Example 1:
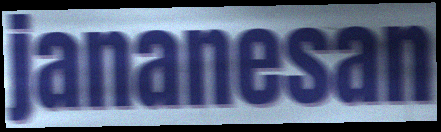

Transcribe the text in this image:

jananesan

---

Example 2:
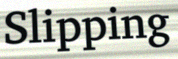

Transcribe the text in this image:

Slipping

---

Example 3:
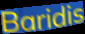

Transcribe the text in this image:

Baridis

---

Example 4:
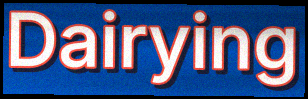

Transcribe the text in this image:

Dairying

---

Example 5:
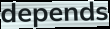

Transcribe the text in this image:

depends